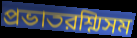
প্রভাতরশ্মিসম